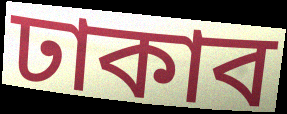
ঢাকাব